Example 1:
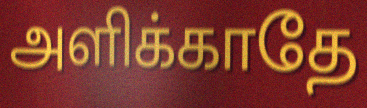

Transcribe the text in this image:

அளிக்காதே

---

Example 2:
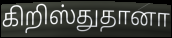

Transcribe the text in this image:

கிறிஸ்துதானா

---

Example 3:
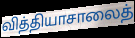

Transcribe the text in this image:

வித்தியாசாலைத்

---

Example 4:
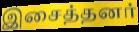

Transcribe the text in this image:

இசைத்தனர்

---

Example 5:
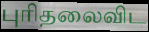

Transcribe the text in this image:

புரிதலைவிட